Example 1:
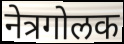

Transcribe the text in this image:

नेत्रगोलक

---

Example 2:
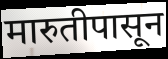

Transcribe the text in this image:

मारुतीपासून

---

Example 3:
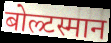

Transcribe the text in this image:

बोल्टस्मान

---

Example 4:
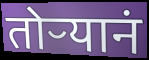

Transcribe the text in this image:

तोऱ्यानं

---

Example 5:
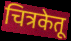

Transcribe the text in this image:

चित्रकेतू